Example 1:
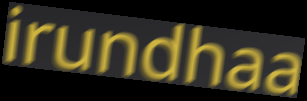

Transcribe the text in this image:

irundhaa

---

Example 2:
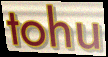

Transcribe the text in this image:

tohu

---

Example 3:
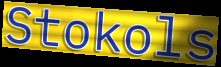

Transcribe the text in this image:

Stokols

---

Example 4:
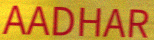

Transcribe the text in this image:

AADHAR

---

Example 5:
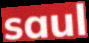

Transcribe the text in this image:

saul